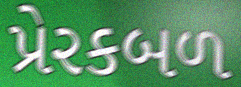
પ્રેરકબળ